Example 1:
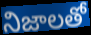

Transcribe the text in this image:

నిజాలతో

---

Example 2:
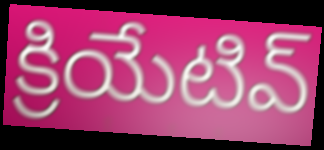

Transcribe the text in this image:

క్రియేటివ్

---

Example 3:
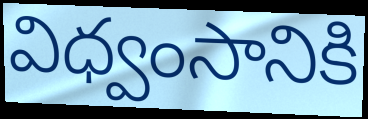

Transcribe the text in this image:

విధ్వంసానికి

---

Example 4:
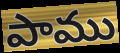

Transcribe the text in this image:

పాము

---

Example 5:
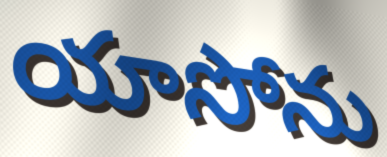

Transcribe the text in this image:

యాసోను